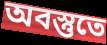
অবস্তুতে